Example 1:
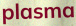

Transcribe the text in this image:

plasma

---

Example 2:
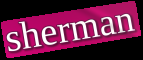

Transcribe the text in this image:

sherman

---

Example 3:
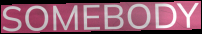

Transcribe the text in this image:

SOMEBODY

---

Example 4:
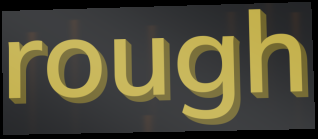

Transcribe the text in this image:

rough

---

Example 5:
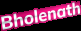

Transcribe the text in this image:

Bholenath